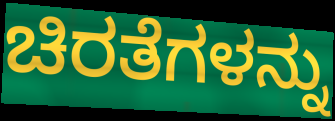
ಚಿರತೆಗಳನ್ನು